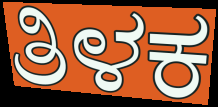
ತಿಳಕ